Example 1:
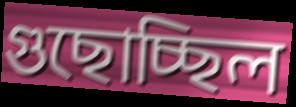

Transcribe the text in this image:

গুছোচ্ছিল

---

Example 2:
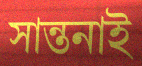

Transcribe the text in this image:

সান্তনাই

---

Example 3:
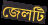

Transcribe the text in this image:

জেলটি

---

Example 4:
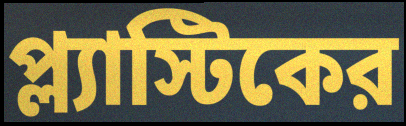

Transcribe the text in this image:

প্ল্যাস্টিকের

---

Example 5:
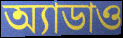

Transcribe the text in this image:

অ্যাডাও